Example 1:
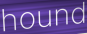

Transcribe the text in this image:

hound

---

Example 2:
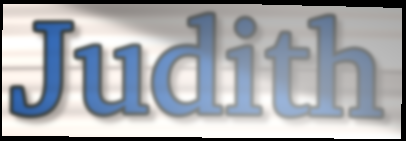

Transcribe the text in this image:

Judith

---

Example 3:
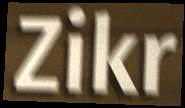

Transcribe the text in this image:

Zikr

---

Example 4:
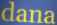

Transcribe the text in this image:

dana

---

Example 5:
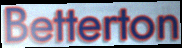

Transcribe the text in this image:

Betterton